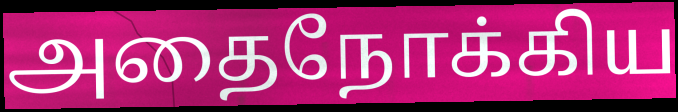
அதைநோக்கிய